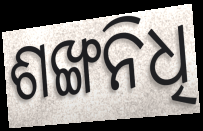
ଶଙ୍ଖନିଧି